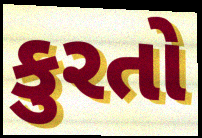
કુરતો